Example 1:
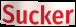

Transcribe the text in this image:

Sucker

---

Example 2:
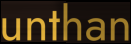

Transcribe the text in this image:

unthan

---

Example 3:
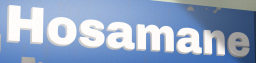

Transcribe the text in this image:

Hosamane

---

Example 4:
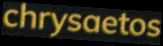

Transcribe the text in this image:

chrysaetos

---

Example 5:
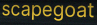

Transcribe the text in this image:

scapegoat